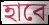
হাবে